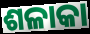
ଶଳାକା